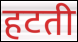
हटती